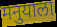
मनुयाला